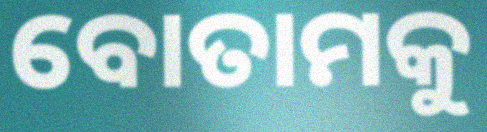
ବୋତାମକୁ